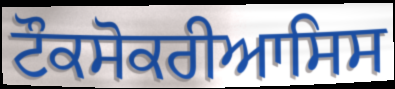
ਟੌਕਸੋਕਰੀਆਸਿਸ